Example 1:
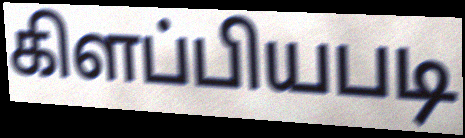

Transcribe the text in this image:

கிளப்பியபடி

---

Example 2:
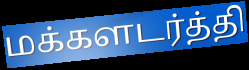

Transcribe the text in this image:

மக்களடர்த்தி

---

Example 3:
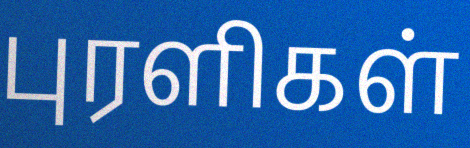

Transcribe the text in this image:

புரளிகள்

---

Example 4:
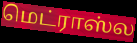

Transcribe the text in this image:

மெட்ராஸ்ல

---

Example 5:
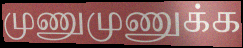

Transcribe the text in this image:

முணுமுணுக்க